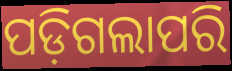
ପଡ଼ିଗଲାପରି